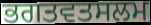
ਭਗਤਵਤਸਲਮ